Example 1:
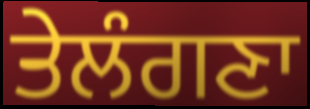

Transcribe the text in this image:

ਤੇਲੰਗਣਾ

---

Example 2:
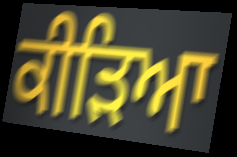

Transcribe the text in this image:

ਕੀੜਿਆ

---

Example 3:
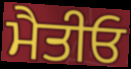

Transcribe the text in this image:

ਮੈਤੀਓ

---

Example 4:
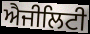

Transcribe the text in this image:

ਐਜੀਲਿਟੀ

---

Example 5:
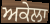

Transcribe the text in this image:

ਅਕੇਲਾ